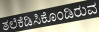
ತಲೆಕೆಡಿಸಿಕೊಂಡಿರುವ